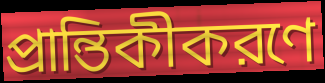
প্রান্তিকীকরণে